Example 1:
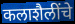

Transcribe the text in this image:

कलाशैलींचे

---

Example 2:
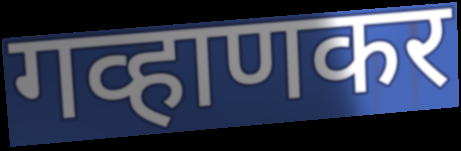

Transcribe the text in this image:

गव्हाणकर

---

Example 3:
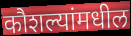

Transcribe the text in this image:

कौशल्यांमधील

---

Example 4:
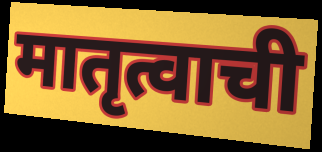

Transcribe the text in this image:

मातृत्वाची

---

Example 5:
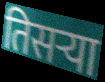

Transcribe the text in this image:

तिसऱ्या